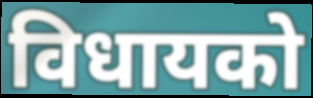
विधायको